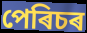
পেৰিচৰ